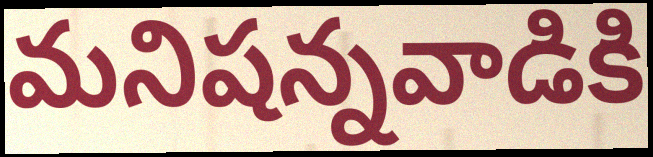
మనిషన్నవాడికి